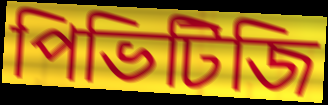
পিভিটিজি